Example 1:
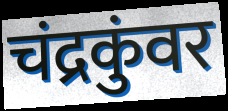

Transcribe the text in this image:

चंद्रकुंवर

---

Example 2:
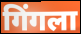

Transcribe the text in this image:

गिंगला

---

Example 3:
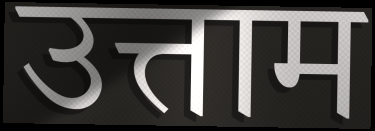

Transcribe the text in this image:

उत्ताम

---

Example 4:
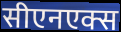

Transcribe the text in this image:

सीएनएक्स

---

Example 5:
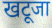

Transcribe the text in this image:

खटूजा